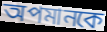
অপমানকে